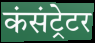
कंसंट्रेटर